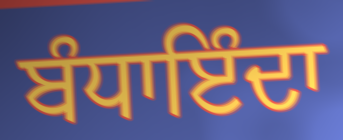
ਬੰਧਾਇੰਦਾ